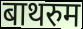
बाथरुम